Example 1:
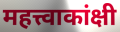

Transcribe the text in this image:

महत्त्वाकांक्षी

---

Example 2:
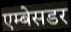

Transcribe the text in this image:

एम्‍बेसडर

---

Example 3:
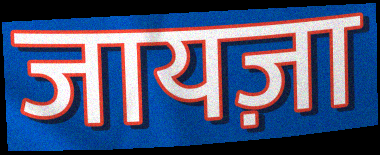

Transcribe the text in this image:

जायज़ा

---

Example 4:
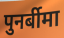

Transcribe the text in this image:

पुनर्बीमा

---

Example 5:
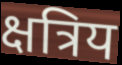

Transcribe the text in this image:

क्षत्रिय